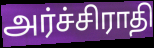
அர்ச்சிராதி